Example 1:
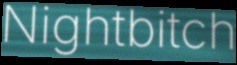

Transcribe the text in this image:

Nightbitch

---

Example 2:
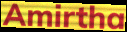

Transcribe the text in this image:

Amirtha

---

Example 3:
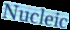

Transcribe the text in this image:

Nucleic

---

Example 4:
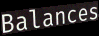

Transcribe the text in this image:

Balances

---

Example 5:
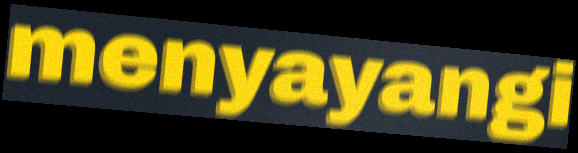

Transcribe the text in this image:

menyayangi